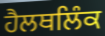
ਹੈਲਥਲਿੰਕ